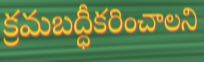
క్రమబద్ధీకరించాలని